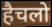
हैचलो